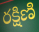
రక్షిణి